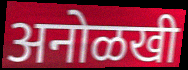
अनोळखी